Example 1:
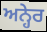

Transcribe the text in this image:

ਅਨ੍ਹੇਰ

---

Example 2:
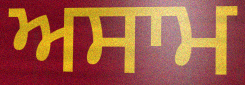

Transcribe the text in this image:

ਅਸਾਮ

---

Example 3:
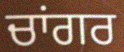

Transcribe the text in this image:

ਚਾਂਗਰ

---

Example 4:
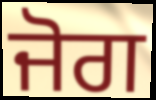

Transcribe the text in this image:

ਜੋਗ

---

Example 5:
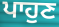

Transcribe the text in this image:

ਪਾਹੁਣ